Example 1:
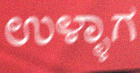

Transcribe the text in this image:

ಉಳ್ಳಾಗ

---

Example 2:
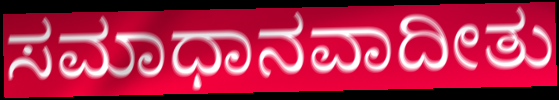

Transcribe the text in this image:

ಸಮಾಧಾನವಾದೀತು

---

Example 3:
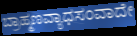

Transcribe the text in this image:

ಬ್ರಾಹ್ಮಣವ್ಯಾಧಸಂವಾದೇ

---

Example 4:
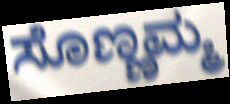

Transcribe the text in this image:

ಸೊಣ್ಣಮ್ಮ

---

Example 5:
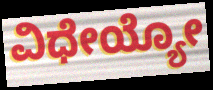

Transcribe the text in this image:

ವಿಧೇಯ್ಯೋ